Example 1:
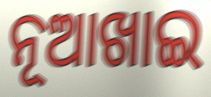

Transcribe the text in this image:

ନୂଆଖାଇ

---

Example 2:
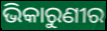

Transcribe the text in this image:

ଭିକାରୁଣୀର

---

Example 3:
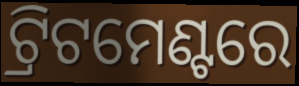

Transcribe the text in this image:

ଟ୍ରିଟମେଣ୍ଟରେ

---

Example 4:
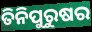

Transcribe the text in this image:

ତିନିପୁରୁଷର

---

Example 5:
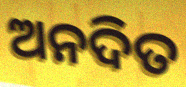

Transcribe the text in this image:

ଅନଦିତ